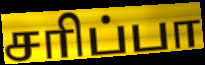
சரிப்பா